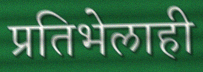
प्रतिभेलाही